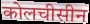
कोलचीसीन